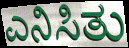
ಎನಿಸಿತು